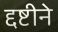
द्दष्टीने